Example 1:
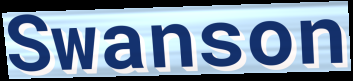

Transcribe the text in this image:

Swanson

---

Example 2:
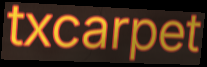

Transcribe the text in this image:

txcarpet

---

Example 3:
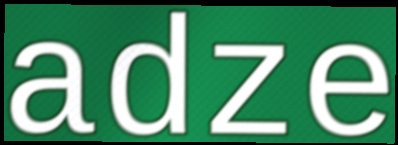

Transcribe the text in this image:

adze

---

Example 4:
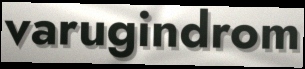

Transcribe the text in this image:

varugindrom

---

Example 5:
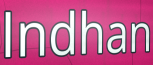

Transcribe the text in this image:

Indhan